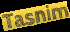
Tasnim